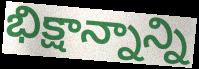
భిక్షాన్నాన్ని